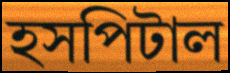
হসপিটাল